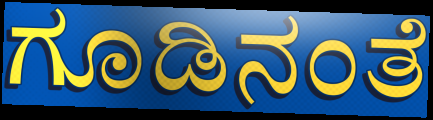
ಗೂಡಿನಂತೆ